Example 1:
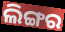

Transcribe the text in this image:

ଲିଙ୍ଗର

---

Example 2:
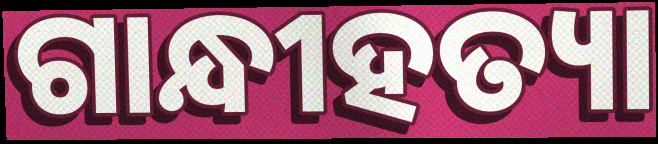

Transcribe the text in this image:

ଗାନ୍ଧୀହତ୍ୟା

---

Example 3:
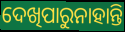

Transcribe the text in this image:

ଦେଖିପାରୁନାହାନ୍ତି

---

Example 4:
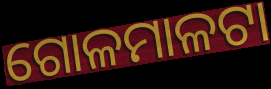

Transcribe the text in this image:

ଗୋଳମାଳଟା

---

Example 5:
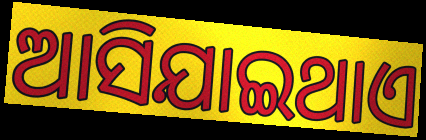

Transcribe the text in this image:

ଆସିଯାଇଥାଏ